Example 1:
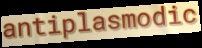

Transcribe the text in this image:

antiplasmodic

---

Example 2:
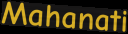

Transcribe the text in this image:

Mahanati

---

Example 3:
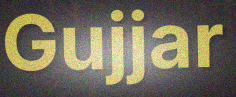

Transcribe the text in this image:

Gujjar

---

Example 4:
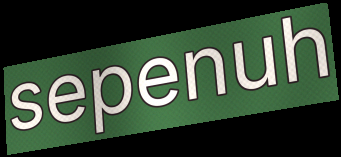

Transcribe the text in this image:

sepenuh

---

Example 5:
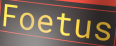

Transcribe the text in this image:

Foetus